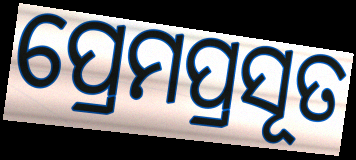
ପ୍ରେମପ୍ରସୂତ